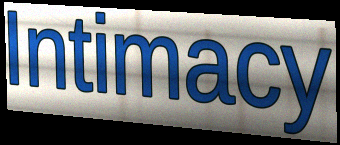
Intimacy